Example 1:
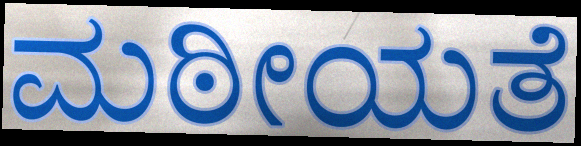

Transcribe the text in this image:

ಮಠೀಯತೆ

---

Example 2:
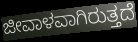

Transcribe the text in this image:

ಜೀವಾಳವಾಗಿರುತ್ತದೆ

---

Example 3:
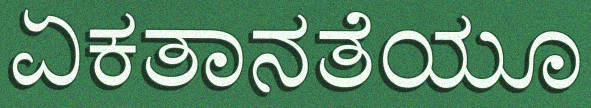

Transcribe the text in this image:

ಏಕತಾನತೆಯೂ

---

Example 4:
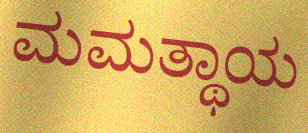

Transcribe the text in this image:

ಮಮತ್ಥಾಯ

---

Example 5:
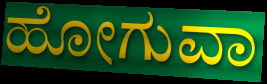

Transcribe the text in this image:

ಹೋಗುವಾ